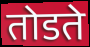
तोडते